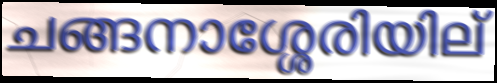
ചങ്ങനാശ്ശേരിയില്